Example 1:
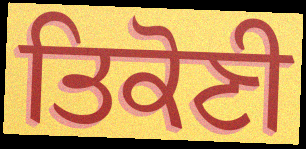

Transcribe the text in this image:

ਤਿਕੋਣੀ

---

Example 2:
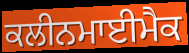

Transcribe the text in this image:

ਕਲੀਨਮਾਈਮੈਕ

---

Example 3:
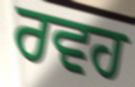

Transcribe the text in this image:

ਰਵਹ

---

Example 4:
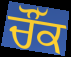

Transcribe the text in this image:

ਚੌੱਕ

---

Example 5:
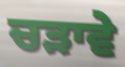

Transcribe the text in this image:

ਚੜਾਵੇ